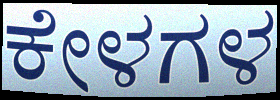
ಕೇಳಗಳ